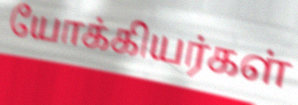
யோக்கியர்கள்